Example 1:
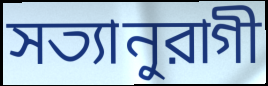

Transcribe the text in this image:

সত্যানুরাগী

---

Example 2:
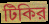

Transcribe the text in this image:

টিকির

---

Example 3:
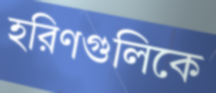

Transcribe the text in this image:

হরিণগুলিকে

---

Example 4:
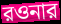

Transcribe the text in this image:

রওনার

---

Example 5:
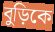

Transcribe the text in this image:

বুড়িকে